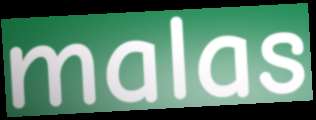
malas